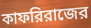
কাফরিরাজের